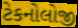
ટેકનોલોજી